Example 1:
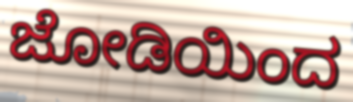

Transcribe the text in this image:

ಜೋಡಿಯಿಂದ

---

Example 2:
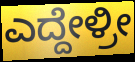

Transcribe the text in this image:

ಎದ್ದೇಳ್ರೀ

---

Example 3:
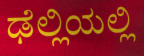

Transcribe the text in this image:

ಢೆಲ್ಲಿಯಲ್ಲಿ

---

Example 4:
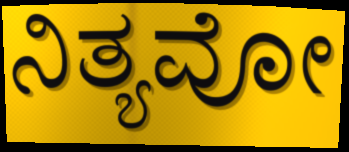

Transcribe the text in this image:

ನಿತ್ಯವೋ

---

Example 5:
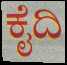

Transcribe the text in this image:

ಕೈದಿ